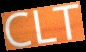
CLT